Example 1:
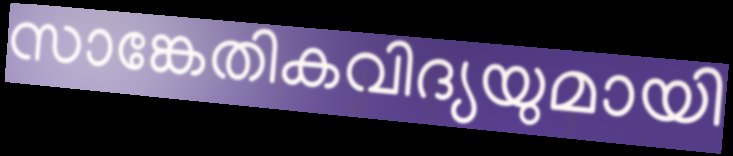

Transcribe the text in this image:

സാങ്കേതികവിദ്യയുമായി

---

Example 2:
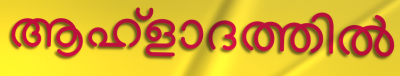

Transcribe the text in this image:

ആഹ്ളാദത്തിൽ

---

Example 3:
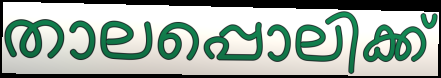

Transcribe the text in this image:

താലപ്പൊലിക്ക്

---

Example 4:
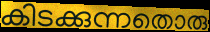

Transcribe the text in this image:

കിടക്കുന്നതൊരു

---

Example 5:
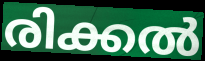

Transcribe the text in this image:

രിക്കൽ